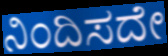
ನಿಂದಿಸದೇ